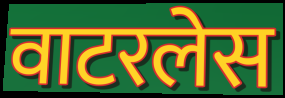
वाटरलेस